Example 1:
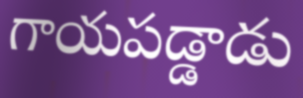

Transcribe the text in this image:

గాయపడ్డాడు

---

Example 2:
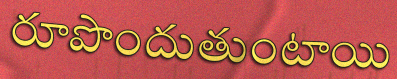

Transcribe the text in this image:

రూపొందుతుంటాయి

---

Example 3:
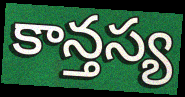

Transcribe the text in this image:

కాన్తస్య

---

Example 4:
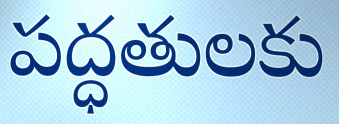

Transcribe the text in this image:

పద్ధతులకు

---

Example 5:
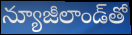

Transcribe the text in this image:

న్యూజీలాండ్‌తో